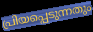
പ്രിയപ്പെടുന്നതും